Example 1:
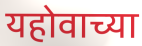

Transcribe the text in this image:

यहोवाच्या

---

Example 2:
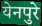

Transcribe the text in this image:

येनपुरे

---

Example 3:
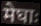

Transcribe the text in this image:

मेघाः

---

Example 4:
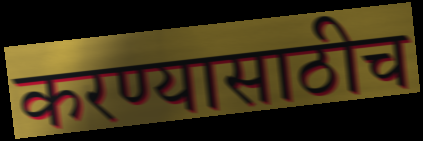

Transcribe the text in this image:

करण्यासाठीच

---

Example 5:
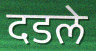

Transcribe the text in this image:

दडले